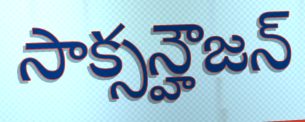
సాక్సన్హౌజన్